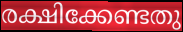
രക്ഷിക്കേണ്ടതു